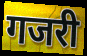
गजरी